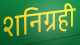
शनिग्रही